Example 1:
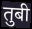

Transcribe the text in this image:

तुबी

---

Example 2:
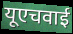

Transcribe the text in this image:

यूएचवाई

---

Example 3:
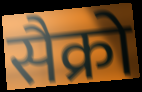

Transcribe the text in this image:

सैक्रो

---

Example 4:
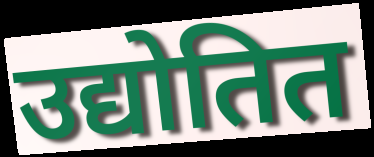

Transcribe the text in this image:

उद्योतित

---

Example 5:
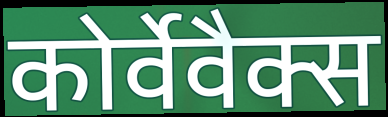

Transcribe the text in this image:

कोर्वेवैक्स